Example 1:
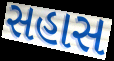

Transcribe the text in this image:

સહાસ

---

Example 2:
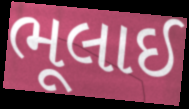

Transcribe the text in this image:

ભૂલાઈ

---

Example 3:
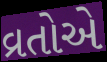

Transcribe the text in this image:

વ્રતોએ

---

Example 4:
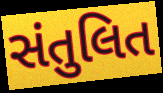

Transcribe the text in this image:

સંતુલિત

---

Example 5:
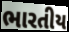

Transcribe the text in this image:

ભારતીય